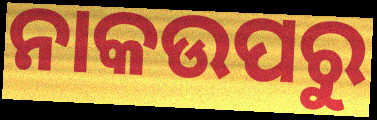
ନାକଉପରୁ